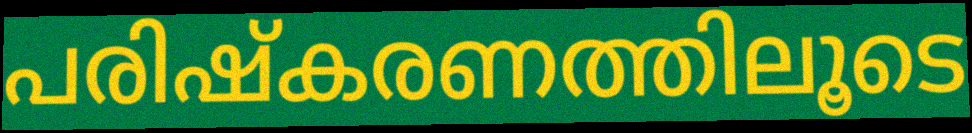
പരിഷ്കരണത്തിലൂടെ